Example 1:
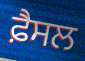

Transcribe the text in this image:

ਫ਼ੈਸਲ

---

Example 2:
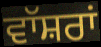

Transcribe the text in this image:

ਵਾੱਸ਼ਰਾਂ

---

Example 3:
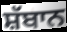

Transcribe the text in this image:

ਸ਼ੱਬਾਨ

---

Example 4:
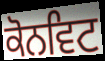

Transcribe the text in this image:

ਕੋਨਵਿਟ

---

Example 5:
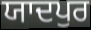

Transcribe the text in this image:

ਯਾਦਪੁਰ